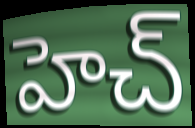
హెచ్